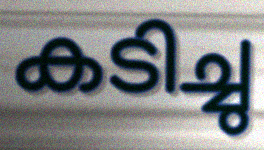
കടിച്ചു